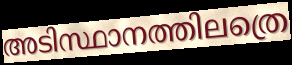
അടിസ്ഥാനത്തിലത്രെ